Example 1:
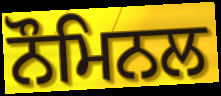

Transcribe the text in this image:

ਨੌਮਿਨਲ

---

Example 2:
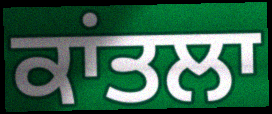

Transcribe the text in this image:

ਕਾਂਤਲਾ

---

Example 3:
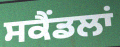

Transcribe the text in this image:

ਸਕੈਂਡਲਾਂ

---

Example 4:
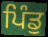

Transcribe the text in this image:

ਪਿੰਡੁ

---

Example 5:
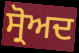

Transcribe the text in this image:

ਸ੍ਰੋਅਦ